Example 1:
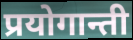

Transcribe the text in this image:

प्रयोगान्ती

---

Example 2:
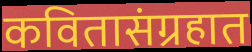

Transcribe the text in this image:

कवितासंग्रहात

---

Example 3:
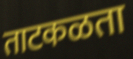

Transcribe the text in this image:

ताटकळता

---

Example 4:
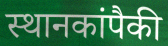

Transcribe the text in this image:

स्थानकांपैकी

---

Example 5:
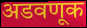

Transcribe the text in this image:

अडवणूक